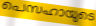
പെസഹായുടെ